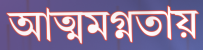
আত্মমগ্নতায়